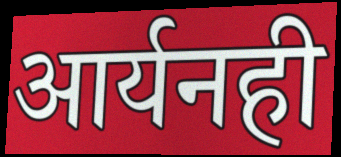
आर्यनही